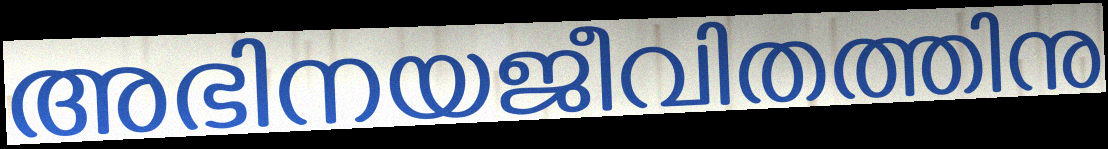
അഭിനയജീവിതത്തിനു